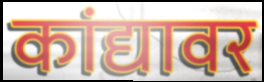
कांद्यावर